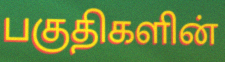
பகுதிகளின்